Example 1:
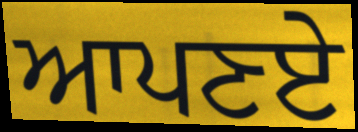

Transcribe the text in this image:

ਆਪਣਏ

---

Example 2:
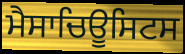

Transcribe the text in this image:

ਮੈਸਾਚਿਊਸਿਟਸ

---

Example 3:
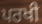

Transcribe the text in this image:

ਪਰਖੀ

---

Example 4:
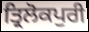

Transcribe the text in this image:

ਤ੍ਰਿਲੋਕਪੁਰੀ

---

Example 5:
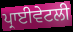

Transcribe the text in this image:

ਪ੍ਰਾਈਵੇਟਲੀ